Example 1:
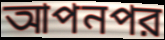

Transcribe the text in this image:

আপনপর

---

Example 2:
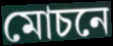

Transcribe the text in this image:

মোচনে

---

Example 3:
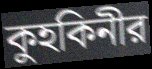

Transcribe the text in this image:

কুহকিনীর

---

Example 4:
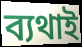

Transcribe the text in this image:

ব্যথাই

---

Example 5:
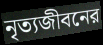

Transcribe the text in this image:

নৃত্যজীবনের